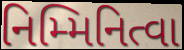
નિમ્મિનિત્વા